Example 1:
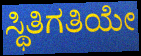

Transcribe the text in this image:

ಸ್ಥಿತಿಗತಿಯೇ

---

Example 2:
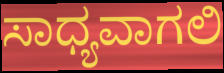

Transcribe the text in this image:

ಸಾಧ್ಯವಾಗಲಿ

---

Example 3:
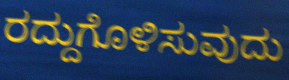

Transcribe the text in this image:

ರದ್ದುಗೊಳಿಸುವುದು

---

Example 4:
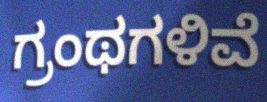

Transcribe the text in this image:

ಗ್ರಂಥಗಳಿವೆ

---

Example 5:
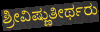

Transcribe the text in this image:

ಶ್ರೀವಿಷ್ಣುತೀರ್ಥರು